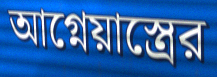
আগ্নেয়াস্ত্রের